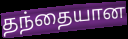
தந்தையான